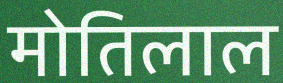
मोतिलाल